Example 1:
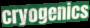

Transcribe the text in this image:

cryogenics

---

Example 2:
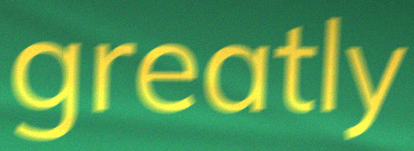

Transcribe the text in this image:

greatly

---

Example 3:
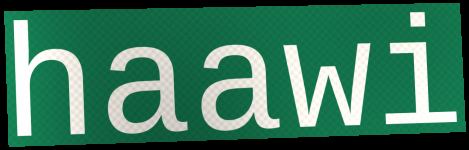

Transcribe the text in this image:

haawi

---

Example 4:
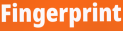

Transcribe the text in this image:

Fingerprint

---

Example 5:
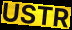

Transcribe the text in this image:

USTR